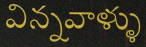
విన్నవాళ్ళు